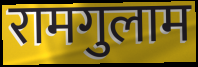
रामगुलाम